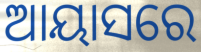
ଆୟାସରେ